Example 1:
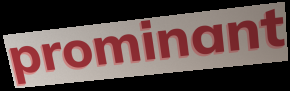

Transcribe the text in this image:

prominant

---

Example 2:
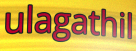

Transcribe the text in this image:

ulagathil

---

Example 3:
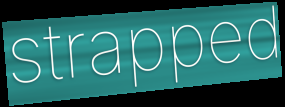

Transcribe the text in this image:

strapped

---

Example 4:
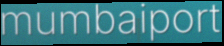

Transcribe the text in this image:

mumbaiport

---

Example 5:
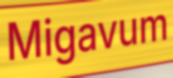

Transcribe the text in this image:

Migavum